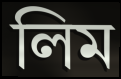
লিম